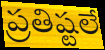
ప్రతిష్టలే